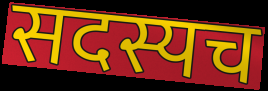
सदस्यच